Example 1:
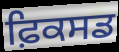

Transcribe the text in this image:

ਫ਼ਿਕਸਡ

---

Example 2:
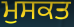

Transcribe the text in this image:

ਮੁਸਕਤ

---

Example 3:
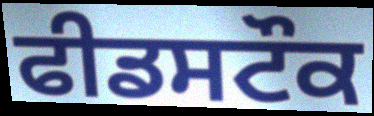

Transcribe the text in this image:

ਫੀਡਸਟੌਕ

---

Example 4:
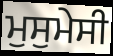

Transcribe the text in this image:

ਮੁਸੁਮੇਸੀ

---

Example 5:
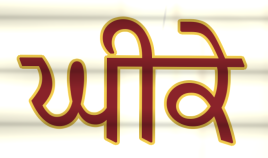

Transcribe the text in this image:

ਘੀਕੇ